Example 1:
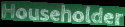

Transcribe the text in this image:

Householder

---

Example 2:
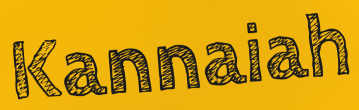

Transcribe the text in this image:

Kannaiah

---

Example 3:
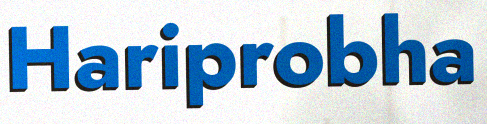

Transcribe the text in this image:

Hariprobha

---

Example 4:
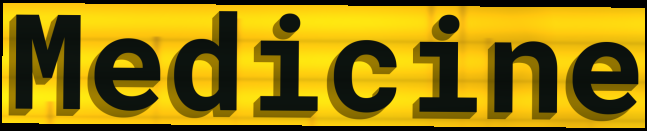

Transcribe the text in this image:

Medicine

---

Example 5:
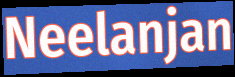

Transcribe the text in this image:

Neelanjan